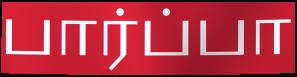
பார்ப்பா